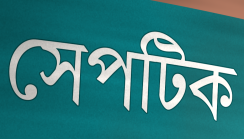
সেপটিক